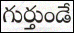
గుర్తుండే